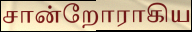
சான்றோராகிய